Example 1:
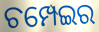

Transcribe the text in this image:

ଚମ୍ପେଇର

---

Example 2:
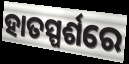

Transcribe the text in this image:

ହାତସ୍ପର୍ଶରେ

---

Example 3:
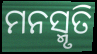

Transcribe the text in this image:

ମନସ୍ମୃତି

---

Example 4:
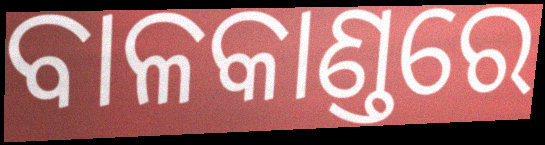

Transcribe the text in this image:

ବାଳକାଣ୍ଡରେ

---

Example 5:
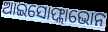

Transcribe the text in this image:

ଆଇସୋଫ୍ଲାଭୋନ